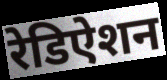
रेडिऐशन